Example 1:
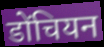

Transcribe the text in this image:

डोंचियन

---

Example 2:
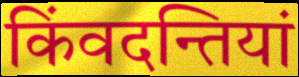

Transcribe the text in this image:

किंवदन्तियां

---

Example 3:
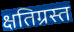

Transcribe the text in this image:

क्षतिग्रस्त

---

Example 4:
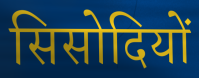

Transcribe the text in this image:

सिसोदियों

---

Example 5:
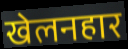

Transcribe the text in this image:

खेलनहार